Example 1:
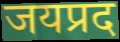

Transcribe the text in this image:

जयप्रद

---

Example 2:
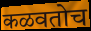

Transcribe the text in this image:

कळवतोच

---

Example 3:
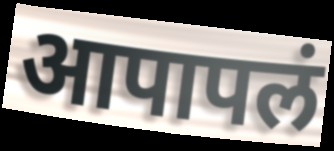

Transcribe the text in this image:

आपापलं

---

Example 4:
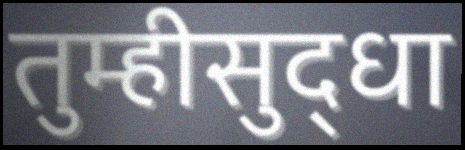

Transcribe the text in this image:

तुम्हीसुद्धा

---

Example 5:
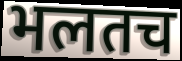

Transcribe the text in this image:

भलतच